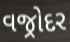
વજ્રોદર